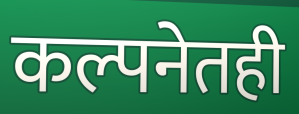
कल्पनेतही